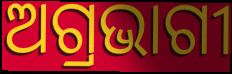
ଅଗ୍ରଭାଗୀ